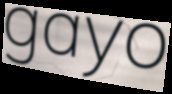
gayo